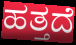
ಹತ್ತದೆ